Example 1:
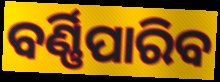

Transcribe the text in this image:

ବର୍ଣ୍ଣିପାରିବ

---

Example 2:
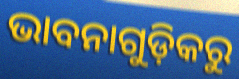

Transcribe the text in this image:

ଭାବନାଗୁଡ଼ିକରୁ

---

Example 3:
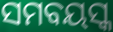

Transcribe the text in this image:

ସମବୟସ୍କ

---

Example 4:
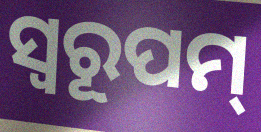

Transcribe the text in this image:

ସ୍ଵରୂପମ୍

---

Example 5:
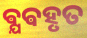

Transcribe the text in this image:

ଵ୍ଯଵହୃତ